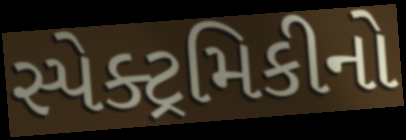
સ્પેક્ટ્રમિકીનો